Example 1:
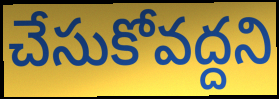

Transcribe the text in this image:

చేసుకోవద్దని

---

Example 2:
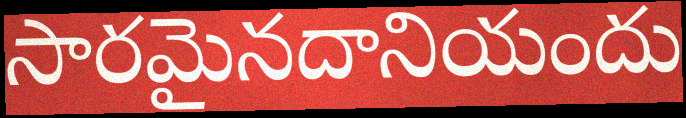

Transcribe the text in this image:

సారమైనదానియందు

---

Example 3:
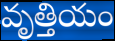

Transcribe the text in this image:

వృత్తియం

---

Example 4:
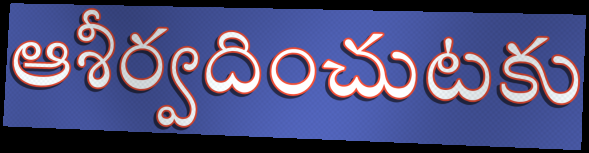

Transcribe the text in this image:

ఆశీర్వదించుటకు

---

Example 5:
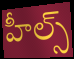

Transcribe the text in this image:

హీల్స్